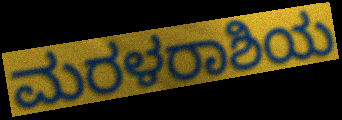
ಮರಳರಾಶಿಯ